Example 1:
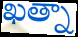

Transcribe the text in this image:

ఖత్నా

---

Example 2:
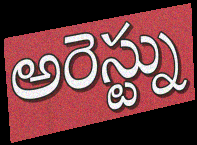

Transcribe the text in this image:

అరెస్ట్ను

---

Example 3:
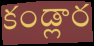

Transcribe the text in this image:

కండ్లార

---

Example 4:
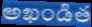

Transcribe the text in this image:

అఖండిత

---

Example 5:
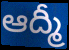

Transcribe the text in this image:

ఆద్మీ